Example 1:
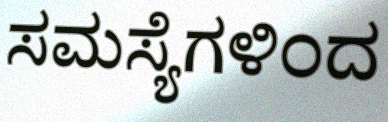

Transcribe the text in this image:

ಸಮಸ್ಯೆಗಳಿಂದ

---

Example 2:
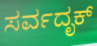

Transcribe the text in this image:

ಸರ್ವದೃಕ್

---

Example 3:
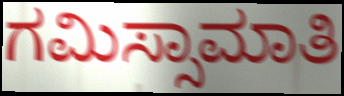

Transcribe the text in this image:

ಗಮಿಸ್ಸಾಮಾತಿ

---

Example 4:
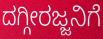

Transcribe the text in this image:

ದಗ್ಗೀರಜ್ಜನಿಗೆ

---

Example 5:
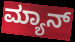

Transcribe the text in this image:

ಮ್ಯಾನ್